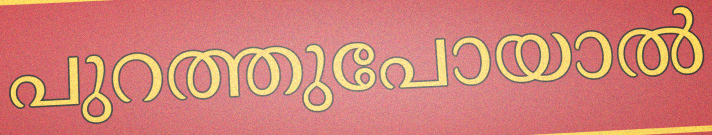
പുറത്തുപോയാൽ